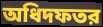
অধিদফতর